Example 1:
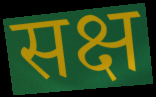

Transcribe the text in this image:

सक्ष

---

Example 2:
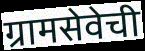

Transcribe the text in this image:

ग्रामसेवेची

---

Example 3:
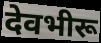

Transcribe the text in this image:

देवभीरू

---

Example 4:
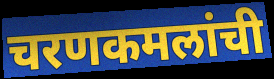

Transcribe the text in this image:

चरणकमलांची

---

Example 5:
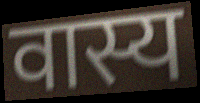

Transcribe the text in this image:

वास्य